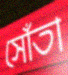
সোঁতা